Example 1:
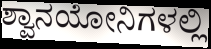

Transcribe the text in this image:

ಶ್ವಾನಯೋನಿಗಳಲ್ಲಿ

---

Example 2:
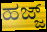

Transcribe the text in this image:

ಹಜ್ಜ್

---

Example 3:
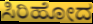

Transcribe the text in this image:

ಸಿರಿಹೋದ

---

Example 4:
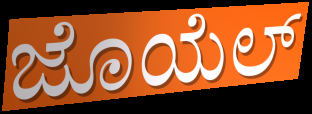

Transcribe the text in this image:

ಜೊಯೆಲ್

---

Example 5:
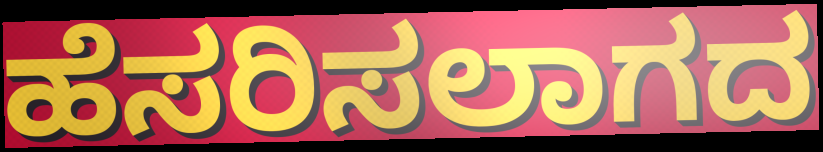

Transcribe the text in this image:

ಹೆಸರಿಸಲಾಗದ